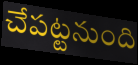
చేపట్టనుంది